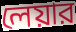
লেয়ার